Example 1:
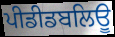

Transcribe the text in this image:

ਪੀਡੀਡਬਲਿਊ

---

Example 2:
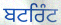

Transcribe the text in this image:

ਬਟਰਿੰਟ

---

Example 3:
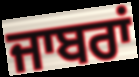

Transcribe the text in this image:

ਜਾਬਰਾਂ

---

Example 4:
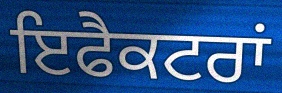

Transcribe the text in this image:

ਇਫੈਕਟਰਾਂ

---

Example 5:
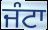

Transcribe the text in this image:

ਜੰਟਾ